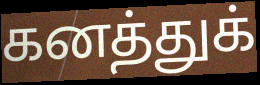
கனத்துக்